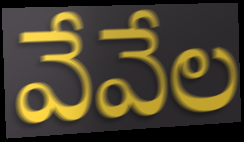
వేవేల